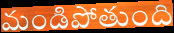
మండిపోతుంది